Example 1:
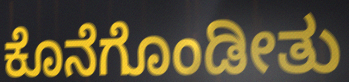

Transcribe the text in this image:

ಕೊನೆಗೊಂಡೀತು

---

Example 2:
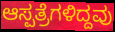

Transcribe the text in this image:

ಆಸ್ಪತ್ರೆಗಳಿದ್ದವು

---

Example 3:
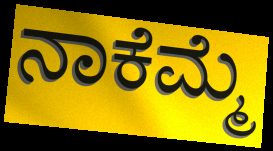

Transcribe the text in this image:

ನಾಕೆಮ್ಮೆ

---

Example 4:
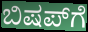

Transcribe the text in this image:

ಬಿಷಪ್‌ಗೆ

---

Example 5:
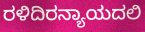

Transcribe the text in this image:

ರಳಿದಿರನ್ಯಾಯದಲಿ